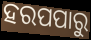
ହରପପାରୁ